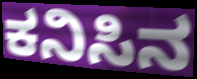
ಕನಿಸಿನ